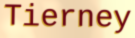
Tierney